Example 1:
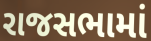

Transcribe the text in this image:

રાજસભામાં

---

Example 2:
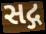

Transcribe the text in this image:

સદ્ગ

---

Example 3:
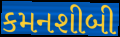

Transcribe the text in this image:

કમનશીબી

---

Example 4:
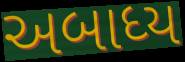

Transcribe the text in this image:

અબાધ્ય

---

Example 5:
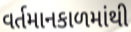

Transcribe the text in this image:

વર્તમાનકાળમાંથી